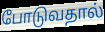
போடுவதால்